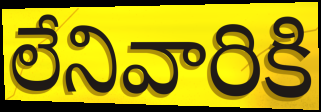
లేనివారికి